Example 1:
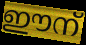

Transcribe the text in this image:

ഈന്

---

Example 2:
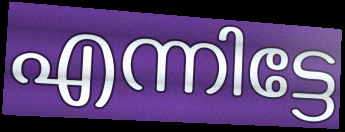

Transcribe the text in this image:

എന്നിട്ടേ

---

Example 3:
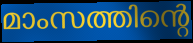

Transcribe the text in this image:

മാംസത്തിന്റെ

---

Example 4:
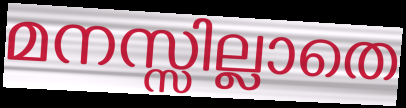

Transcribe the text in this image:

മനസ്സില്ലാതെ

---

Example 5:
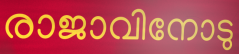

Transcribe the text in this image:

രാജാവിനോടു